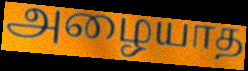
அழையாத